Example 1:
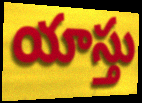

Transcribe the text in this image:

యాస్తు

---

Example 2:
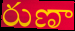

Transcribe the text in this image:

రుణా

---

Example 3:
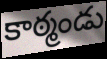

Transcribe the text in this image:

కాఠ్మండు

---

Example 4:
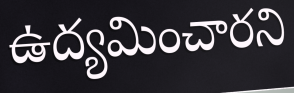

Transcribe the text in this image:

ఉద్యమించారని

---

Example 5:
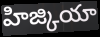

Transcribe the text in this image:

హిజ్కియా